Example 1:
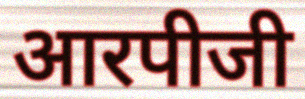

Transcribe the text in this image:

आरपीजी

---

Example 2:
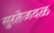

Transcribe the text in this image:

सुरतेजवळ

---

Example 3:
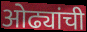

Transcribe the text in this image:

ओढ्यांची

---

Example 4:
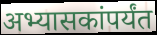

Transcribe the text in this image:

अभ्यासकांपर्यंत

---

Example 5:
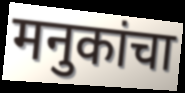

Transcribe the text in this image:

मनुकांचा